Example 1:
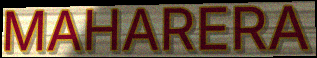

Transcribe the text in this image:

MAHARERA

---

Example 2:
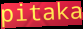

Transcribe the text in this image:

pitaka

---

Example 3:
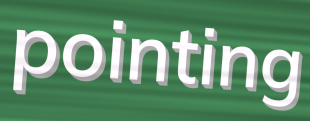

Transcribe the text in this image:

pointing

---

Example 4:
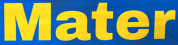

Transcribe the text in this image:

Mater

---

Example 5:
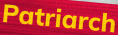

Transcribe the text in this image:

Patriarch